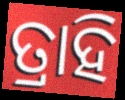
ତ୍ରାହି